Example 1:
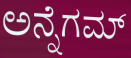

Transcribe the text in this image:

ಅನ್ನೆಗಮ್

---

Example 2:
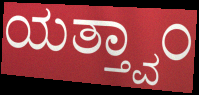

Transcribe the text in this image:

ಯತ್ತ್ವಾಂ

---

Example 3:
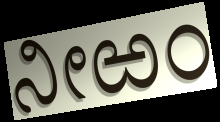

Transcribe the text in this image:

ನೀಱಂ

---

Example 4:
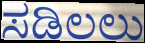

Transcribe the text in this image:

ಸಡಿಲಲು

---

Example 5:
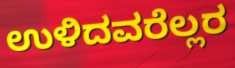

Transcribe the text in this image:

ಉಳಿದವರೆಲ್ಲರ